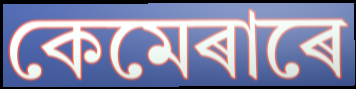
কেমেৰাৰে